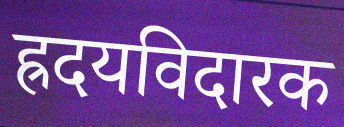
ह्रदयविदारक